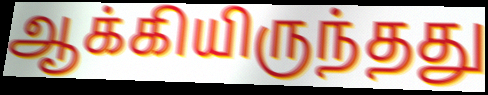
ஆக்கியிருந்தது